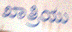
ಖಾತ್ರಿಯು